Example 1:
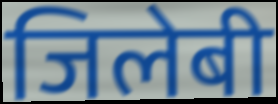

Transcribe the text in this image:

जिलेबी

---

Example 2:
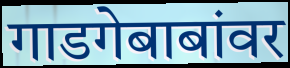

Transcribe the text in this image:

गाडगेबाबांवर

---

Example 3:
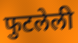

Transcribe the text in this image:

फुटलेली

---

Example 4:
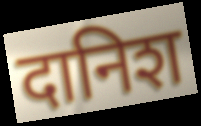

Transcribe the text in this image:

दानिश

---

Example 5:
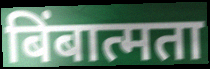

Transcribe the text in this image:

बिंबात्मता